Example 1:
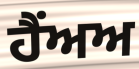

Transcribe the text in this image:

ਹੈਂਅਅ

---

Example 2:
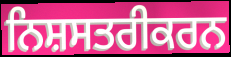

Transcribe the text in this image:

ਨਿਸ਼ਸਤਰੀਕਰਨ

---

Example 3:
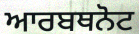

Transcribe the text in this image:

ਆਰਬਥਨੋਟ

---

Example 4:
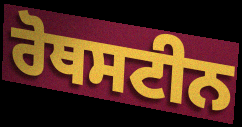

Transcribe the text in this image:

ਰੋਥਸਟੀਨ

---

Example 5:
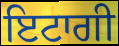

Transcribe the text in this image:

ਇਟਾਗੀ